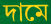
দামে